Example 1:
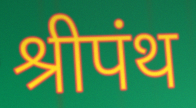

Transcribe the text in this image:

श्रीपंथ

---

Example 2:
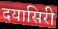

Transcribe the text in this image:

दयासिरी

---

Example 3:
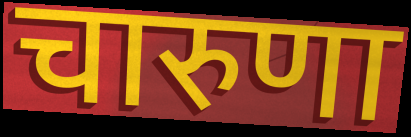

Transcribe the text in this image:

चारुणा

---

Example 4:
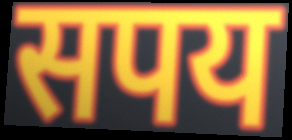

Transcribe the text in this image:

सपय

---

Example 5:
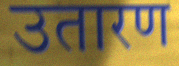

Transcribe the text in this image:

उतारण